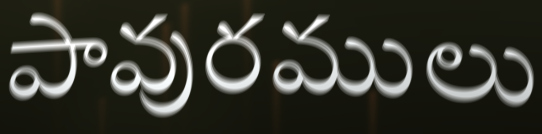
పావురములు